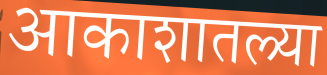
आकाशातल्या